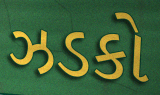
ઝડકો